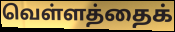
வெள்ளத்தைக்